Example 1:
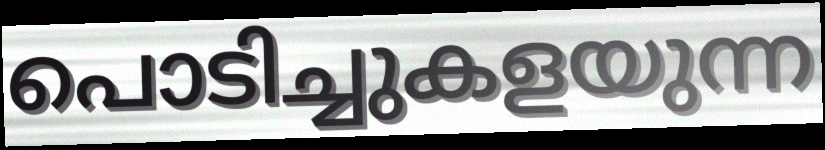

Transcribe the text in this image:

പൊടിച്ചുകളയുന്ന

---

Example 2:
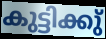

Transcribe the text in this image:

കുട്ടിക്കു്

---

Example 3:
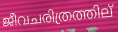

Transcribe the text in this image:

ജീവചരിത്രത്തില്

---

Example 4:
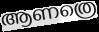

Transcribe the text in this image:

ആണത്രെ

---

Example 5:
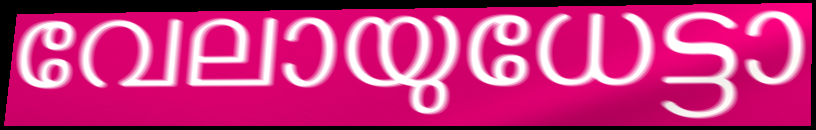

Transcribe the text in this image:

വേലായുധേട്ടാ